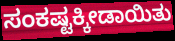
ಸಂಕಷ್ಟಕ್ಕೀಡಾಯಿತು